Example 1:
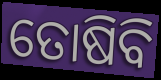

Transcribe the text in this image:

ତୋଷିବି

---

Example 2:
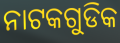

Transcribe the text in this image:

ନାଟକଗୁଡିକ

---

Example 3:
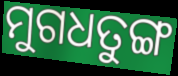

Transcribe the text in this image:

ମୁଗଧତୁଙ୍ଗ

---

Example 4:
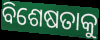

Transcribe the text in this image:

ବିଶେଷତାକୁ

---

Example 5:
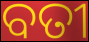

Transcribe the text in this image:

ବତୀ